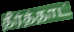
தீர்த்தாட்